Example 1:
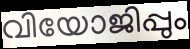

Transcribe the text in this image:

വിയോജിപ്പും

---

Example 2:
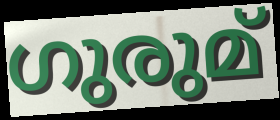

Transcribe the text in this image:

ഗുരുമ്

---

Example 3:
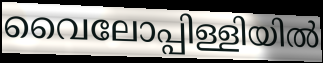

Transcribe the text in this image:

വൈലോപ്പിള്ളിയിൽ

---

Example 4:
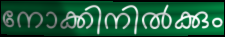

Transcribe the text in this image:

നോക്കിനിൽക്കും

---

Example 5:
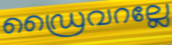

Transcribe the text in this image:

ഡ്രൈവറല്ലേ